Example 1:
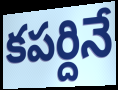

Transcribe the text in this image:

కపర్దినే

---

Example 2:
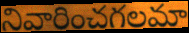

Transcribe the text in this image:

నివారించగలమా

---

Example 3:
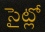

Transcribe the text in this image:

సైట్లో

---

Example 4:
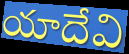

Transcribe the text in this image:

యాదేవి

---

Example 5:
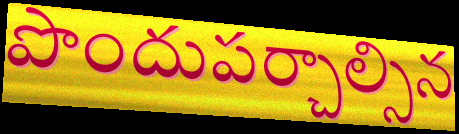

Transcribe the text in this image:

పొందుపర్చాల్సిన